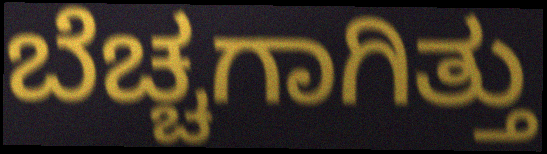
ಬೆಚ್ಚಗಾಗಿತ್ತು